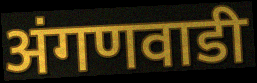
अंगणवाडी